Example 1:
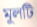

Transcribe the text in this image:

মূলটি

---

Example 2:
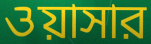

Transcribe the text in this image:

ওয়াসার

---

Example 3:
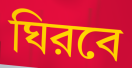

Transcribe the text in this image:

ঘিরবে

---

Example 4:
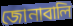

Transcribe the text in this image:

জোনাবালি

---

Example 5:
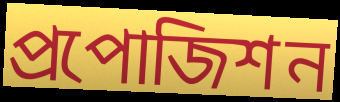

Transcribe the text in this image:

প্রপোজিশন